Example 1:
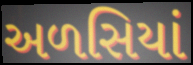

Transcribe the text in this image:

અળસિયાં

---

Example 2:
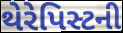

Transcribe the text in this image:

થેરેપિસ્ટની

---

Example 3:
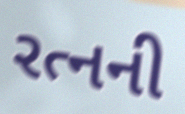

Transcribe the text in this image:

રત્નની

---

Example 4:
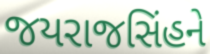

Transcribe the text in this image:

જયરાજસિંહને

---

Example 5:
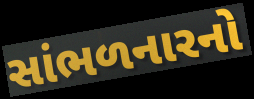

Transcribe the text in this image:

સાંભળનારનો